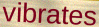
vibrates